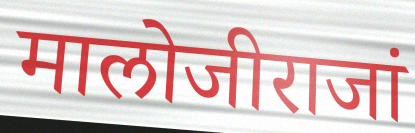
मालोजीराजां